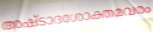
അഷ്ടാദശോക്തമവരം